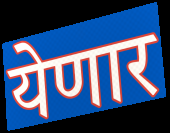
येणार